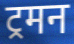
ट्रमन